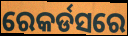
ରେକର୍ଡସରେ